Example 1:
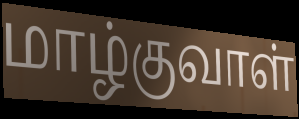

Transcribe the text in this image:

மாழ்குவாள்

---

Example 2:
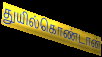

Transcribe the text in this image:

துயில்கொண்டான்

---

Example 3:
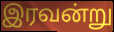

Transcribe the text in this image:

இரவன்று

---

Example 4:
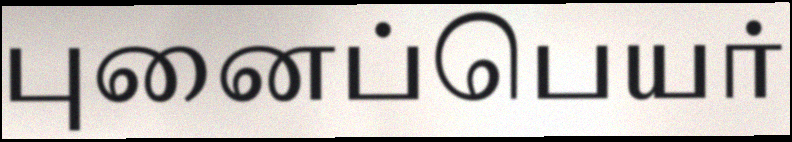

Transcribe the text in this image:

புனைப்பெயர்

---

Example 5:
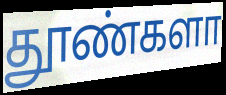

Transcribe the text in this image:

தூண்களா